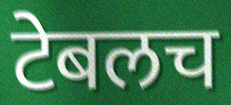
टेबलच